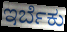
ಇರ್ಬೆಕು